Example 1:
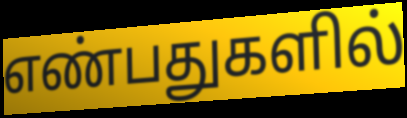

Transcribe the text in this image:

எண்பதுகளில்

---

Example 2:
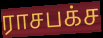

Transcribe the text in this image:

ராசபக்ச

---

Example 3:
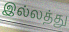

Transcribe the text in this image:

இல்லத்து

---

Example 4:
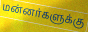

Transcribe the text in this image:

மன்னர்களுக்கு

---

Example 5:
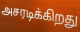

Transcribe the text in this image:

அசரடிக்கிறது